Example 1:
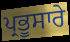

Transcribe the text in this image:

ਪ੍ਰਭੂਸਾਰੇ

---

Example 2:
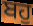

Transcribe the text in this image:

ਬਹੁ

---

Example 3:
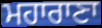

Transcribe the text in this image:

ਮਹਾਰਾਣਾ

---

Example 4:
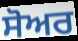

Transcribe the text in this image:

ਸੋਅਰ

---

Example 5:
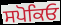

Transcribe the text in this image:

ਸਪੋਕਿਓ